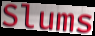
Slums